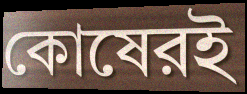
কোষেরই